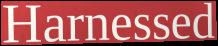
Harnessed